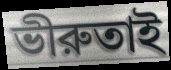
ভীরুতাই